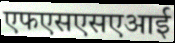
एफएसएसएआई